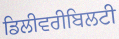
ਡਿਲੀਵਰੀਬਿਲਟੀ